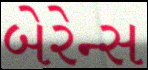
બેરેન્સ